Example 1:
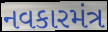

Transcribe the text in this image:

નવકારમંત્ર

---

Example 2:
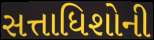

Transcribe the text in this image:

સત્તાધિશોની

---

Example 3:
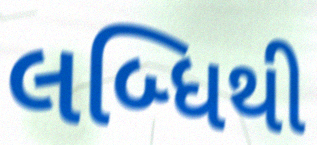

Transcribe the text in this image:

લબ્ધિથી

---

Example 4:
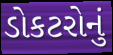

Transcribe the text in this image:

ડોકટરોનું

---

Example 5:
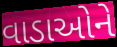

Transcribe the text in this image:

વાડાઓને